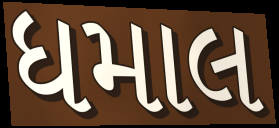
ધમાલ